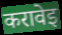
करावेइ